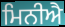
ਮਿਨੀਐ